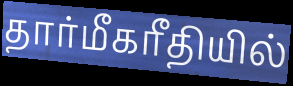
தார்மீகரீதியில்